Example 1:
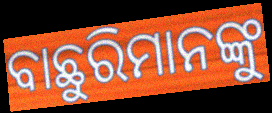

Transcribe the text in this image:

ବାଛୁରିମାନଙ୍କୁ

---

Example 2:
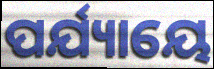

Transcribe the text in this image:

ପର୍ଯ୍ୟାୟେ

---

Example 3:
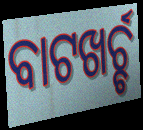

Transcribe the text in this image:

ବାଟଖର୍ଚ୍ଚ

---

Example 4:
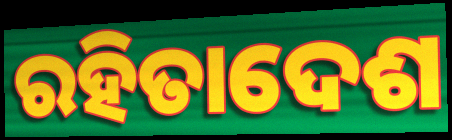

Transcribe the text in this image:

ରହିତାଦେଶ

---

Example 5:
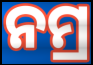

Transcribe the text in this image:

ନମ୍ର